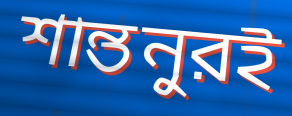
শান্তনুরই